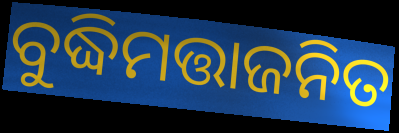
ବୁଦ୍ଧିମତ୍ତାଜନିତ